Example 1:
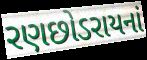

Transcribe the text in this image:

રણછોડરાયનાં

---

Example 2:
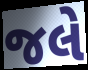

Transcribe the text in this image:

જલે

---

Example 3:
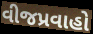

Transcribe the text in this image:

વીજપ્રવાહો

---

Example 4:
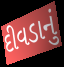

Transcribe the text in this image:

દીવડાનું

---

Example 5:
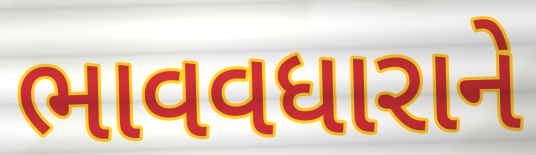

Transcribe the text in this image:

ભાવવધારાને